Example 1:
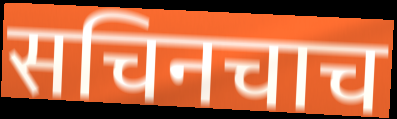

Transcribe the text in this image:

सचिनचाच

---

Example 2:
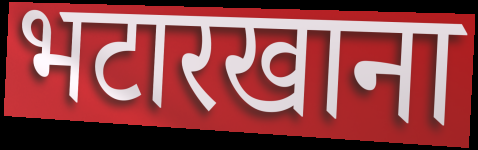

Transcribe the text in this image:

भटारखाना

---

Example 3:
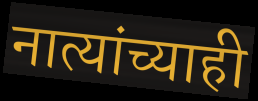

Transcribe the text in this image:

नात्यांच्याही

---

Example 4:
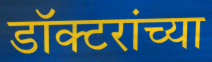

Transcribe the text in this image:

डॉक्टरांच्या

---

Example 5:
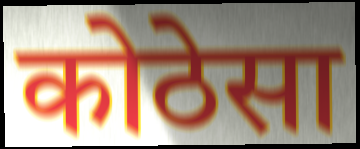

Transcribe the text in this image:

कोठेसा